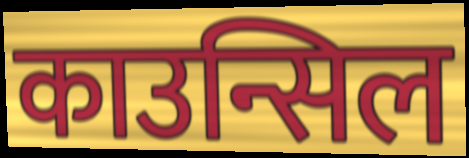
काउन्सिल